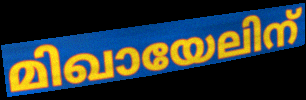
മിഖായേലിന്